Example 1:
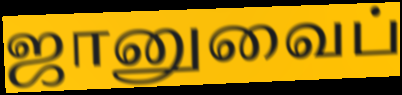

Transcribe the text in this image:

ஜானுவைப்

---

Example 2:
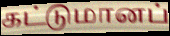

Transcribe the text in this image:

கட்டுமானப்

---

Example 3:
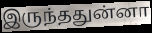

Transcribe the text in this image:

இருந்ததுன்னா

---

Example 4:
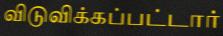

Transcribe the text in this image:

விடுவிக்கப்பட்டார்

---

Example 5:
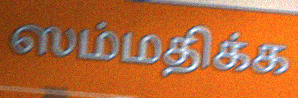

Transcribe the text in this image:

ஸம்மதிக்க